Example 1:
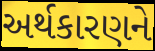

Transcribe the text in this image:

અર્થકારણને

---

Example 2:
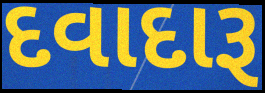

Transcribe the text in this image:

દવાદારૂ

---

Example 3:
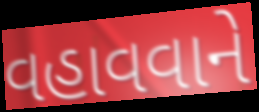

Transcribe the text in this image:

વહાવવાને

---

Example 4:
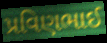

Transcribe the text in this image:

પ્રવિણભાઈ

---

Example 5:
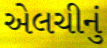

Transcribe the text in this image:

એલચીનું